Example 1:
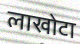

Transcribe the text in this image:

लाखोटा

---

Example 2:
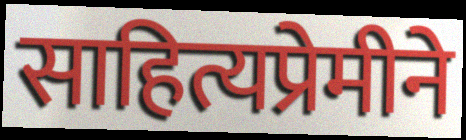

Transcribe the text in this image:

साहित्यप्रेमीने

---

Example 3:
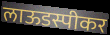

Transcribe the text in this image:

लाऊडस्पीकर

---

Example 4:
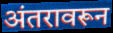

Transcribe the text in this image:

अंतरावरून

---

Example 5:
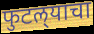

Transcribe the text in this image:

फुटल्याचा